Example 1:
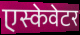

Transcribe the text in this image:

एस्केवेटर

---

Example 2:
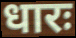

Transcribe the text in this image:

धारः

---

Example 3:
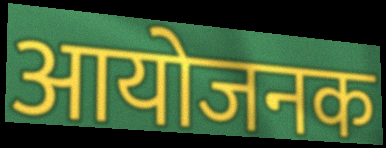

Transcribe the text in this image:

आयोजनक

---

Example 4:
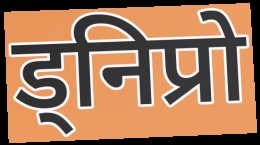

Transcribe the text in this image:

ड्निप्रो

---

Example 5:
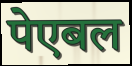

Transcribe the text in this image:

पेएबल